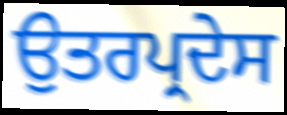
ਉਤਰਪ੍ਰਦੇਸ